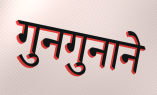
गुनगुनाने